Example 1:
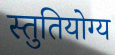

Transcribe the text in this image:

स्तुतियोग्य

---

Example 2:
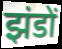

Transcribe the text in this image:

झंडों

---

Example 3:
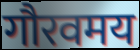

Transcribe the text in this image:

गौरवमय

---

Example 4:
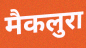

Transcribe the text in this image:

मैकलुरा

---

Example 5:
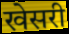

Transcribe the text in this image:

खेसरी